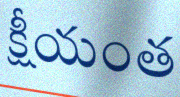
క్షీయంత